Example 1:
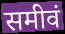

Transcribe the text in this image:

समीवं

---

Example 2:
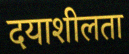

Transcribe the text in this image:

दयाशीलता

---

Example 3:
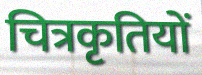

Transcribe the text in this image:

चित्रकृतियों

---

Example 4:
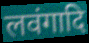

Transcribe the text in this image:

लवंगादि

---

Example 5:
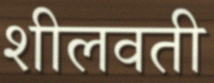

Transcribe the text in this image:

शीलवती